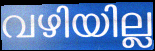
വഴിയില്ല